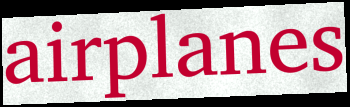
airplanes